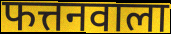
फत्तनवाला